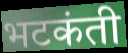
भटकंती